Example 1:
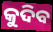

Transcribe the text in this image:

କୁଦିବ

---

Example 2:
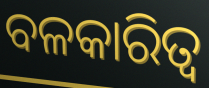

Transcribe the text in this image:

ବଳକାରିତ୍ୱ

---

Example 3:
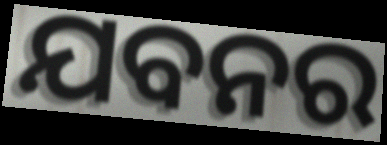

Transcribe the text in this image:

ଯବନର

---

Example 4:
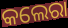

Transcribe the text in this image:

କଲେରା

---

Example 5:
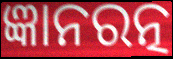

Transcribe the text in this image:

ଜ୍ଞାନରତ୍ନ